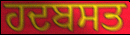
ਹਦਬਸਤ